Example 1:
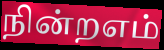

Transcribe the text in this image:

நின்றஎம்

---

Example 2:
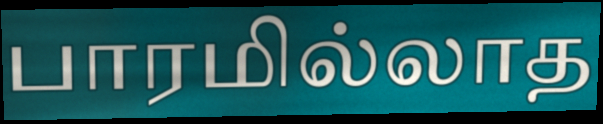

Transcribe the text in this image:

பாரமில்லாத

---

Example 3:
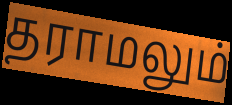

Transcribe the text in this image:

தராமலும்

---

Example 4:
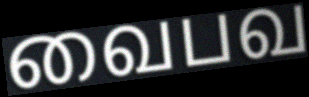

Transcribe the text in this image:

வைபவ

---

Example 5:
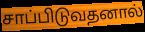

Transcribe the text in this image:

சாப்பிடுவதனால்